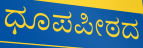
ಧೂಪಪೀಠದ